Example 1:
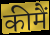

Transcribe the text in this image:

कीमैं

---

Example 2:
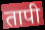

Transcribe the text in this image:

तापी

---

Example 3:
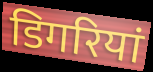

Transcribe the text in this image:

डिगरियां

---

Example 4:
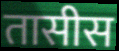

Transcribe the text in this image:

तासीस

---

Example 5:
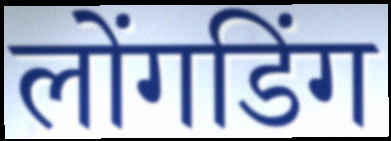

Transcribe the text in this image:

लोंगडिंग